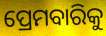
ପ୍ରେମବାରିକୁ